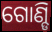
ଗୋଣ୍ଡି